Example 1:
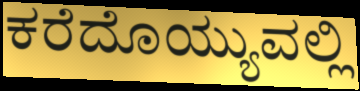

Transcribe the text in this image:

ಕರೆದೊಯ್ಯುವಲ್ಲಿ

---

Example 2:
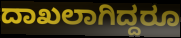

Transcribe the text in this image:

ದಾಖಲಾಗಿದ್ದರೂ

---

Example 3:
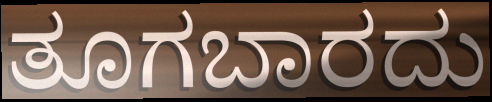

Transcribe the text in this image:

ತೂಗಬಾರದು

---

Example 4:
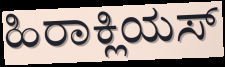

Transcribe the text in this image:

ಹಿರಾಕ್ಲಿಯಸ್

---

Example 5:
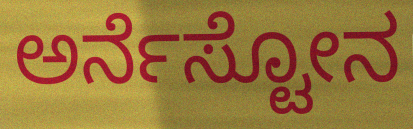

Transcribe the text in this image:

ಅರ್ನೆಸ್ಟೋನ